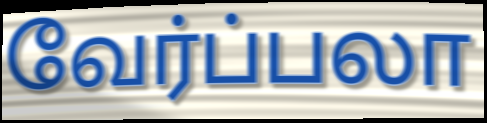
வேர்ப்பலா